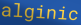
alginic